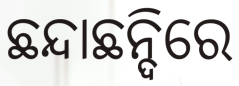
ଛନ୍ଦାଛନ୍ଦିରେ